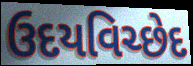
ઉદયવિચ્છેદ